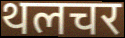
थलचर